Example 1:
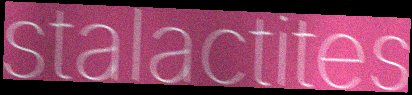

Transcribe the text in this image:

stalactites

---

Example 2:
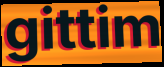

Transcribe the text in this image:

gittim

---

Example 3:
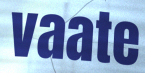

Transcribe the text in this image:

vaate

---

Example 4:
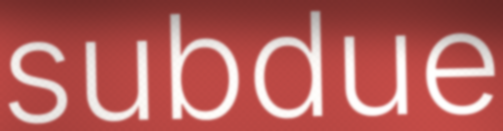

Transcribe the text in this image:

subdue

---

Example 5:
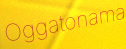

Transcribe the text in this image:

Oggatonama